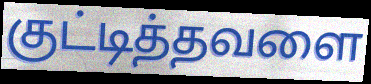
குட்டித்தவளை